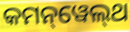
କମନ୍‌ୱେଲ୍‌ଥ